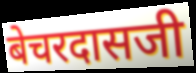
बेचरदासजी